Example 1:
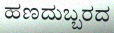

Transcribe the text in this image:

ಹಣದುಬ್ಬರದ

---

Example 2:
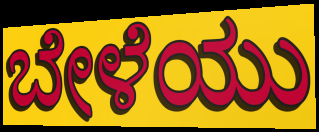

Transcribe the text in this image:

ಬೇಳೆಯು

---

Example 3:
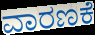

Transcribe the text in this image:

ವಾರಣಕೆ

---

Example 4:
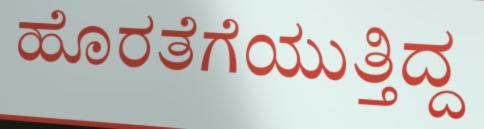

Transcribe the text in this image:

ಹೊರತೆಗೆಯುತ್ತಿದ್ದ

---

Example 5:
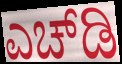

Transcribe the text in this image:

ಎಚ್‍ಡಿ